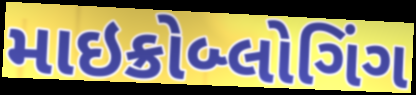
માઇક્રોબ્લોગિંગ